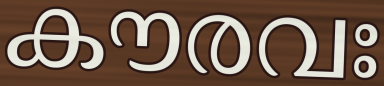
കൗരവഃ